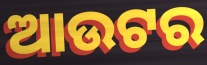
ଆଉଟର